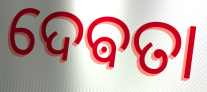
ଦେଵତା